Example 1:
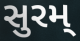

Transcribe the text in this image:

સુરમ્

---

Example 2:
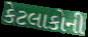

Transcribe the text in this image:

કેટલાકોની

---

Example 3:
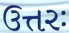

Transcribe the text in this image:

ઉત્તરઃ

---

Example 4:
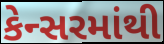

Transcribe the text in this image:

કેન્સરમાંથી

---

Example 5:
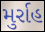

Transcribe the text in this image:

મુર્રાહ